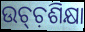
ଉଚ୍ଚ଼ଶିକ୍ଷା